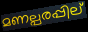
മണല്പരപ്പില്